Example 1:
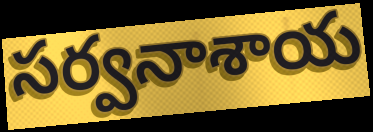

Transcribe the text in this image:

సర్వనాశాయ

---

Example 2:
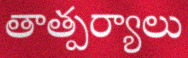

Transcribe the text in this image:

తాత్పర్యాలు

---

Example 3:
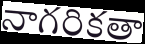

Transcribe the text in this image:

నాగరికతా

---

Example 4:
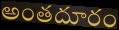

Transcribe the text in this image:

అంతదూరం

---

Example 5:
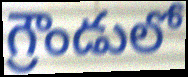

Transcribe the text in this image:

గ్రౌండులో